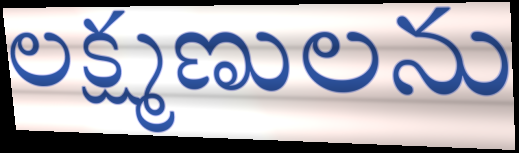
లక్ష్మణులను